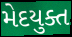
મેદયુક્ત